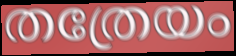
തത്രേയം